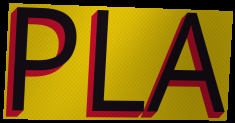
PLA